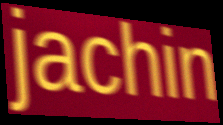
jachin